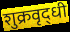
शुक्रवृद्धी